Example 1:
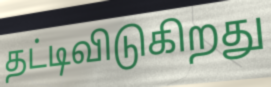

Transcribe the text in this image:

தட்டிவிடுகிறது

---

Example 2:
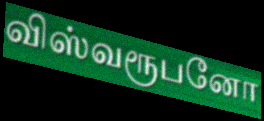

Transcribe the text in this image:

விஸ்வரூபனோ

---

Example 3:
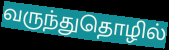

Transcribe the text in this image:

வருந்துதொழில்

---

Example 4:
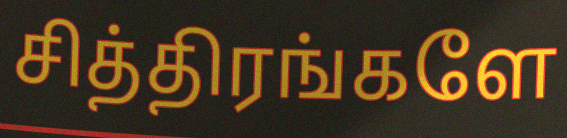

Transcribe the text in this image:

சித்திரங்களே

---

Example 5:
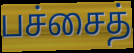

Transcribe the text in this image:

பச்சைத்